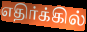
எதிர்க்கில்